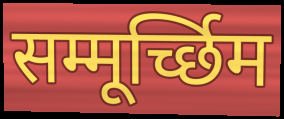
सम्मूर्च्छिम